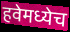
हवेमध्येच